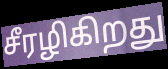
சீரழிகிறது